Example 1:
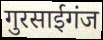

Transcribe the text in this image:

गुरसाईगंज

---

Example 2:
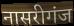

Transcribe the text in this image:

नासरीगंज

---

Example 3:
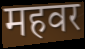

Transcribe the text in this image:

महवर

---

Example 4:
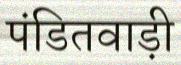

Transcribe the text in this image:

पंडितवाड़ी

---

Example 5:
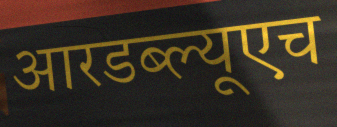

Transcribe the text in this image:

आरडब्ल्यूएच